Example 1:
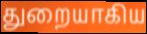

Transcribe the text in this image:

துறையாகிய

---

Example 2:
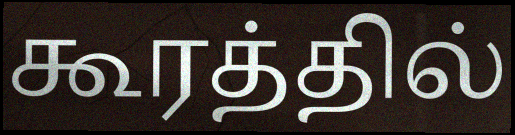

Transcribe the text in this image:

கூரத்தில்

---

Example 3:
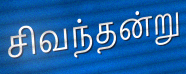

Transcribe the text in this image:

சிவந்தன்று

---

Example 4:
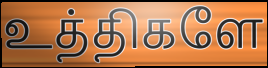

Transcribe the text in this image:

உத்திகளே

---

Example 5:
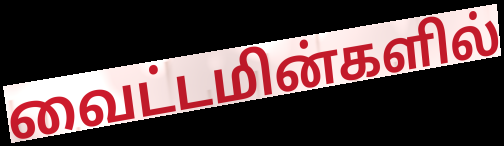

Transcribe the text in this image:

வைட்டமின்களில்